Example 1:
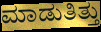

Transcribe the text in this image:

ಮಾಡುತಿತ್ತು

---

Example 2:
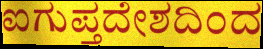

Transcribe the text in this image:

ಐಗುಪ್ತದೇಶದಿಂದ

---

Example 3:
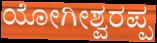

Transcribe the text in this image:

ಯೋಗೀಶ್ವರಪ್ಪ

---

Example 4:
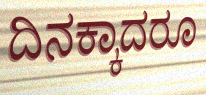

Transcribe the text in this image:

ದಿನಕ್ಕಾದರೂ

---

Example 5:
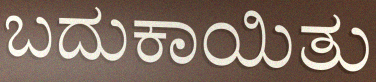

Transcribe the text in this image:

ಬದುಕಾಯಿತು